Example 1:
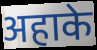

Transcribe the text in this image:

अहाके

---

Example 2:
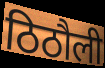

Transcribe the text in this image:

ठिठौली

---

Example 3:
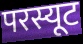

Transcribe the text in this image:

परस्यूट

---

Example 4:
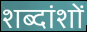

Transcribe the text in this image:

शब्दांशों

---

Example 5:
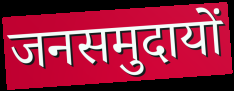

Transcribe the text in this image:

जनसमुदायों